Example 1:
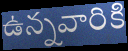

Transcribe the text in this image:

ఉన్నవారికి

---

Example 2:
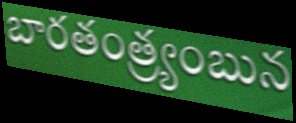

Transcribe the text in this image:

బారతంత్ర్యంబున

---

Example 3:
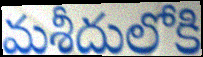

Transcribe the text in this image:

మశీదులోకి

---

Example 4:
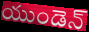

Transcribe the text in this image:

యుండెన్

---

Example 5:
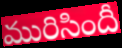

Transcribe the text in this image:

మురిసిందీ